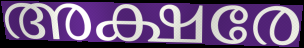
അക്ഷരേ